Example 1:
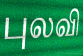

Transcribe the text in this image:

புலவி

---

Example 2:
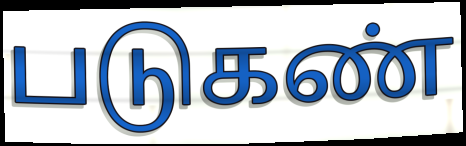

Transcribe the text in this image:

படுகண்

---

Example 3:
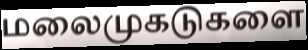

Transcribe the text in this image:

மலைமுகடுகளை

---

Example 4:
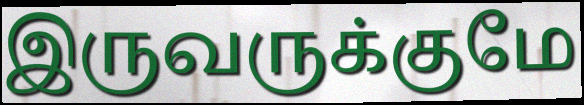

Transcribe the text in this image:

இருவருக்குமே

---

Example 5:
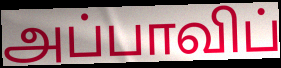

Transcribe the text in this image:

அப்பாவிப்